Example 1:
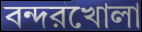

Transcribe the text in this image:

বন্দরখোলা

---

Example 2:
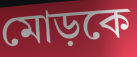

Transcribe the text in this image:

মোড়কে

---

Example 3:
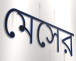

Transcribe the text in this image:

মেসের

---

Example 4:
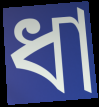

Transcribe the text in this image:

ধা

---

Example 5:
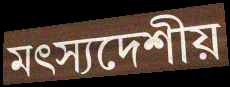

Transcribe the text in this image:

মৎস্যদেশীয়